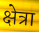
क्षेत्रा